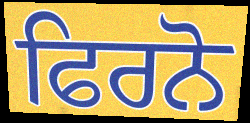
ਫਿਰਨੋ